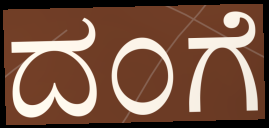
ದಂಗೆ